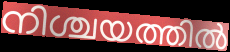
നിശ്ചയത്തിൽ